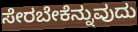
ಸೇರಬೇಕೆನ್ನುವುದು